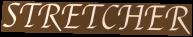
STRETCHER